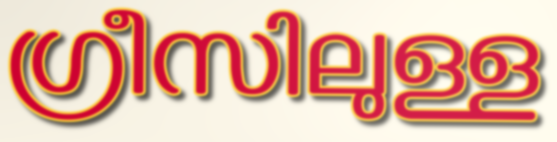
ഗ്രീസിലുള്ള